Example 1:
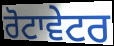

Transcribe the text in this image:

ਰੋਟਾਵੇਟਰ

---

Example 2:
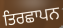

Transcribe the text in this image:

ਤਿਰਛਾਪਨ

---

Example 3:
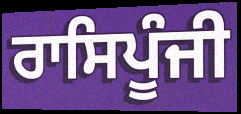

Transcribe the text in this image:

ਰਾਸਿਪੂੰਜੀ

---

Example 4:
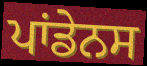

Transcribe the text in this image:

ਪਾਂਡੇਨਸ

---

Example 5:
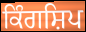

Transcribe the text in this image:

ਕਿੰਗਸ਼ਿਪ